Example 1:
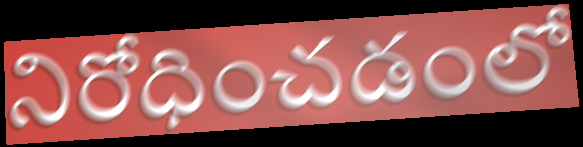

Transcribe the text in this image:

నిరోధించడంలో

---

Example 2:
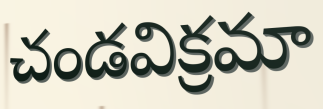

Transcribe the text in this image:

చండవిక్రమా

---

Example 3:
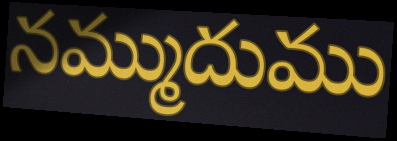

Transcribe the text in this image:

నమ్ముదుము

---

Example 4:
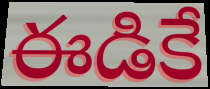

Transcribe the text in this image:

ఈడికే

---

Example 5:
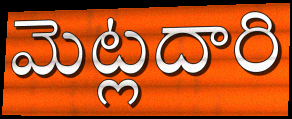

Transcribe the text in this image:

మెట్లదారి